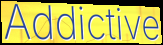
Addictive